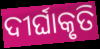
ଦୀର୍ଘାକୃତି